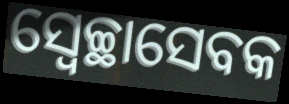
ସ୍ୱେଚ୍ଛାସେବକ